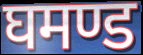
घमण्ड